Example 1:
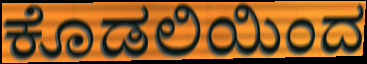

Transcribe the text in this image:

ಕೊಡಲಿಯಿಂದ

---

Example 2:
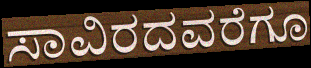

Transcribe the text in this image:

ಸಾವಿರದವರೆಗೂ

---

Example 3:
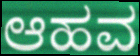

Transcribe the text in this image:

ಆಹವ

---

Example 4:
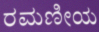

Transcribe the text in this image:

ರಮಣೀಯ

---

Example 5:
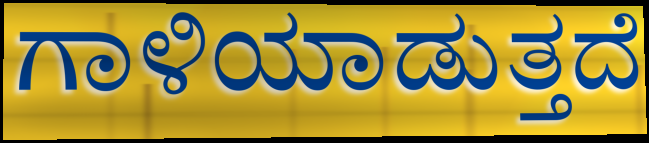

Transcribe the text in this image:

ಗಾಳಿಯಾಡುತ್ತದೆ